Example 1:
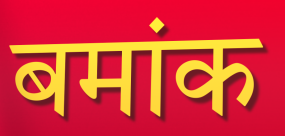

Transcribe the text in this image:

बमांक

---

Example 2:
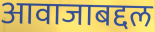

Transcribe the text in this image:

आवाजाबद्दल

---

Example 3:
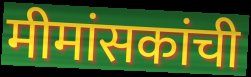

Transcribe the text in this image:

मीमांसकांची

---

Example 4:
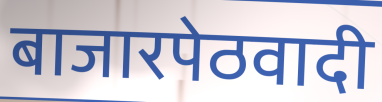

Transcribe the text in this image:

बाजारपेठवादी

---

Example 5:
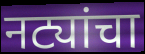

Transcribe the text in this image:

नट्यांचा